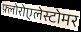
फ़्लोरोएलेस्टोमर